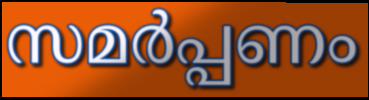
സമർപ്പണം